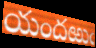
యందఱుఁ